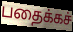
பதைக்கச்